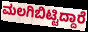
ಮಲಗಿಬಿಟ್ಟಿದ್ದಾರೆ